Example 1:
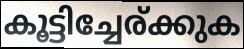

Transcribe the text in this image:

കൂട്ടിച്ചേര്ക്കുക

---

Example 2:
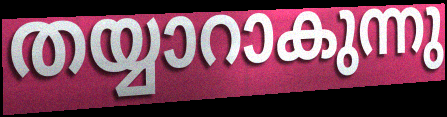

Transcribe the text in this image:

തയ്യാറാകുന്നു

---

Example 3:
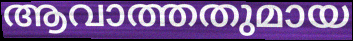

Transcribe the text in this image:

ആവാത്തതുമായ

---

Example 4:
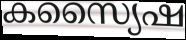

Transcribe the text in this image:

കസ്യൈഷ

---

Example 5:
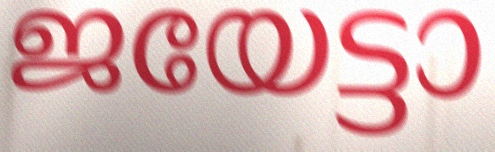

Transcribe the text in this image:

ജയേട്ടാ